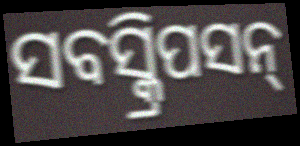
ସବସ୍କ୍ରିପସନ୍